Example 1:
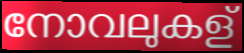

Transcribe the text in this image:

നോവലുകള്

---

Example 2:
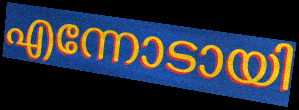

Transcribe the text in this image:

എന്നോടായി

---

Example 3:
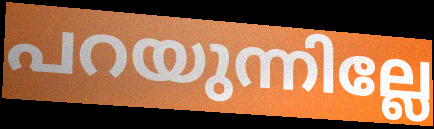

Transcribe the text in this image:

പറയുന്നില്ലേ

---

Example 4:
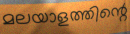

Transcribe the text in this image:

മലയാളത്തിന്റെ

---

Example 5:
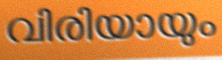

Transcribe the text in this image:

വിരിയായും